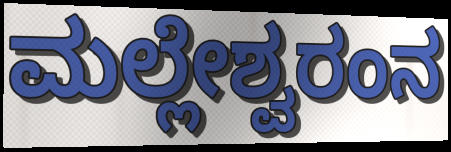
ಮಲ್ಲೇಶ್ವರಂನ